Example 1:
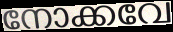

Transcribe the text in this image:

നോക്കവേ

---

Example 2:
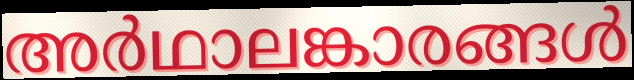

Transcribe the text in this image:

അർഥാലങ്കാരങ്ങൾ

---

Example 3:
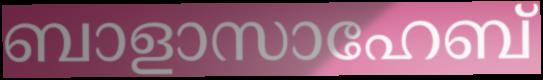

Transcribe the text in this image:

ബാളാസാഹേബ്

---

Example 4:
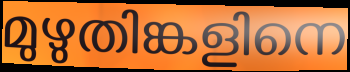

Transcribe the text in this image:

മുഴുതിങ്കളിനെ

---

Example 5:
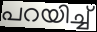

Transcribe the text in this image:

പറയിച്ച്